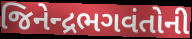
જિનેન્દ્રભગવંતોની